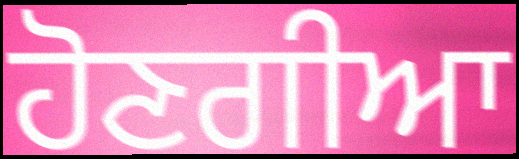
ਹੋਣਗੀਆ